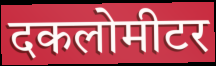
दकलोमीटर